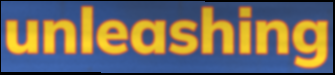
unleashing